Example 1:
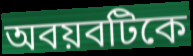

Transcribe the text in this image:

অবয়বটিকে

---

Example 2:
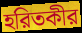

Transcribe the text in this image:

হরিতকীর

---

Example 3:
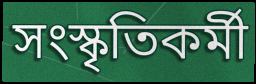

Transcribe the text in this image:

সংস্কৃতিকর্মী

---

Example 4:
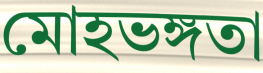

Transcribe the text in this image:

মোহভঙ্গতা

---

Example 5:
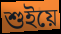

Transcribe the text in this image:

শুইয়ে